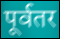
पूर्वतर